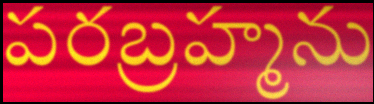
పరబ్రహ్మను